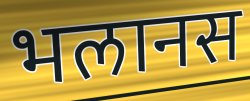
भलानस